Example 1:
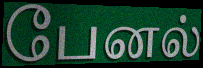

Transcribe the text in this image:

பேனல்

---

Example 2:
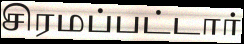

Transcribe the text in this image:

சிரமப்பட்டார்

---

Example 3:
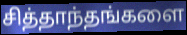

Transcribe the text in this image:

சித்தாந்தங்களை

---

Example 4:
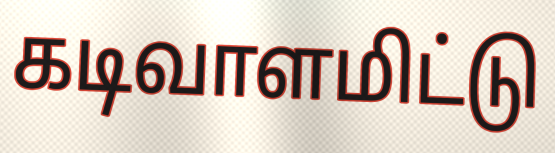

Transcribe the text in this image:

கடிவாளமிட்டு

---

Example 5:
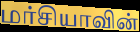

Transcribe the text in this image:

மர்சியாவின்